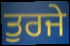
ਤੁਰਜੇ